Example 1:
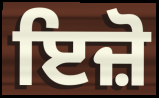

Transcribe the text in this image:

ਇਜ਼ੋ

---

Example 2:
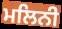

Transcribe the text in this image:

ਮਲਿਨੀ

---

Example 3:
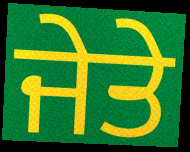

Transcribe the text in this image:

ਜੇਤੇ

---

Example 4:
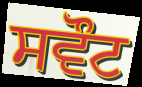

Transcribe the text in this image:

ਸਵੌਟ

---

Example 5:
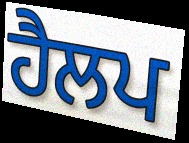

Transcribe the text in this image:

ਹੈਲਪ